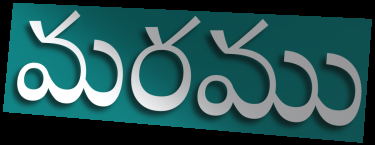
మరము